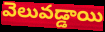
వెలువడ్డాయి